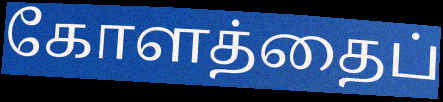
கோளத்தைப்